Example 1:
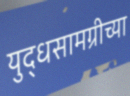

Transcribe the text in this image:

युद्धसामग्रीच्या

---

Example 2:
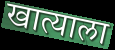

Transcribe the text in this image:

खात्याला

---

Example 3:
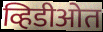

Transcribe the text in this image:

व्हिडीओत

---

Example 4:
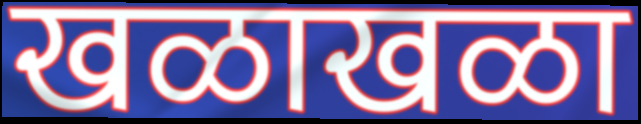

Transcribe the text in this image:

खळाखळा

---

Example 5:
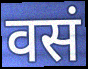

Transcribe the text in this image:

वसं